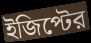
ইজিপ্টের